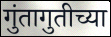
गुंतागुतीच्या